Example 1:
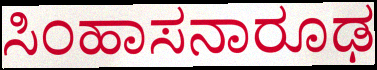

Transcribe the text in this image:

ಸಿಂಹಾಸನಾರೂಢ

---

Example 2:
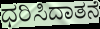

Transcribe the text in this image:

ಧರಿಸಿದಾತನೆ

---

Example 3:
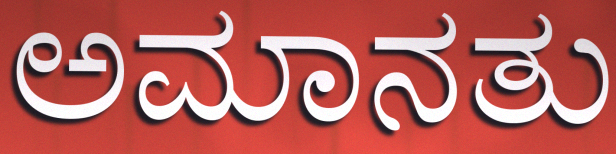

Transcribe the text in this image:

ಅಮಾನತು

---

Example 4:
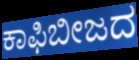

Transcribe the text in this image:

ಕಾಫಿಬೀಜದ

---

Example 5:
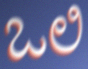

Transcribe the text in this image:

ಒಲಿ